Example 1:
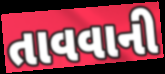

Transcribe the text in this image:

તાવવાની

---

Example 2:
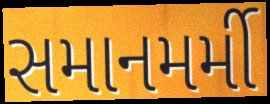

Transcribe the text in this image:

સમાનમર્મી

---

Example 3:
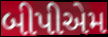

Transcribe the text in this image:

બીપીએમ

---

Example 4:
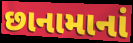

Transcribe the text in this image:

છાનામાનાં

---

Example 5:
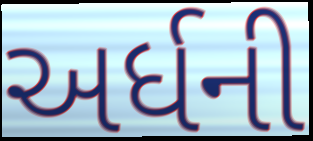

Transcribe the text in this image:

અર્ધની